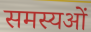
समस्यओं